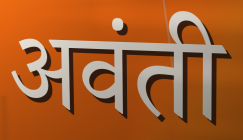
अवंती